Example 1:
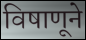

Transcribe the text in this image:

विषाणूने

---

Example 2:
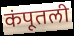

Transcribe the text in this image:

कंपूतली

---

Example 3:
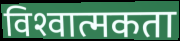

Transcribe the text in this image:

विश्वात्मकता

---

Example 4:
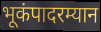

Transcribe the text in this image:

भूकंपादरम्यान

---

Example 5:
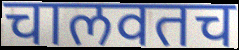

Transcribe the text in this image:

चालवतच